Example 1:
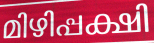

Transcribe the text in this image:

മിഴിപ്പക്ഷി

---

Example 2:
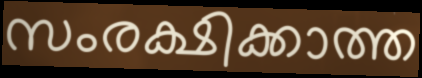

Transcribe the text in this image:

സംരക്ഷിക്കാത്ത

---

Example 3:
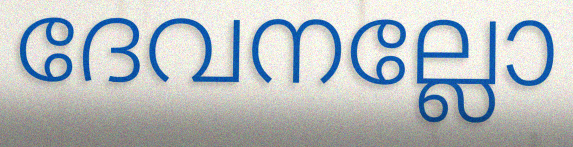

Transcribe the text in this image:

ദേവനല്ലോ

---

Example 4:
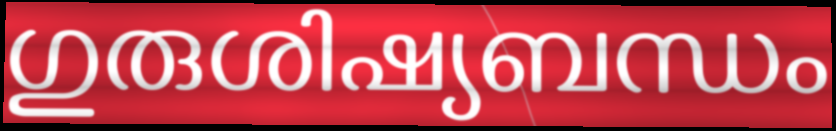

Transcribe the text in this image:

ഗുരുശിഷ്യബന്ധം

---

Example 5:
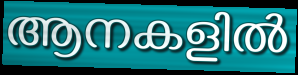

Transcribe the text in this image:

ആനകളിൽ